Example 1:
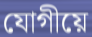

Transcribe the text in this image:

যোগীয়ে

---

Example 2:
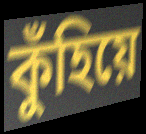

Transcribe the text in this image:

কুঁহিয়ে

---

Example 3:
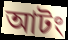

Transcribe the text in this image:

আটং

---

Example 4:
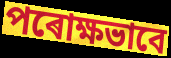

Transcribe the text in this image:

পৰোক্ষভাবে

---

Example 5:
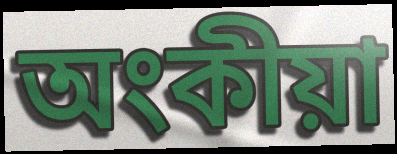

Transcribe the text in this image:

অংকীয়া